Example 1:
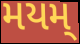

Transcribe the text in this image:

મયમ્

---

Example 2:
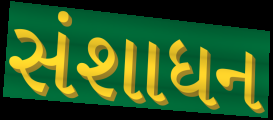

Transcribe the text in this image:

સંશાધન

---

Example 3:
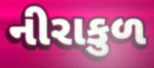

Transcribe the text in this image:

નીરાકુળ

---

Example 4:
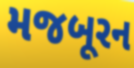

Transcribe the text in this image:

મજબૂરન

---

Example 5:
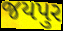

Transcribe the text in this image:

જયપુર